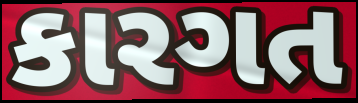
કારગત